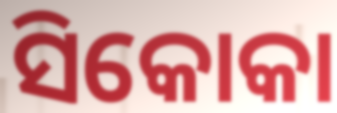
ସିକୋକା